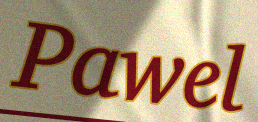
Pawel